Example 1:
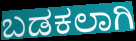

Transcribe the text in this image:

ಬಡಕಲಾಗಿ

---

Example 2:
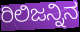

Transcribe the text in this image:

ರಿಲಿಜನ್ನಿನ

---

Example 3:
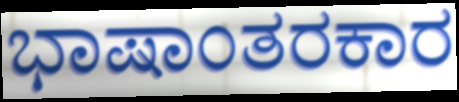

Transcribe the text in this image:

ಭಾಷಾಂತರಕಾರ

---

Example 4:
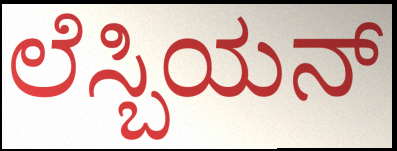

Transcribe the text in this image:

ಲೆಸ್ಬಿಯನ್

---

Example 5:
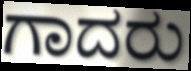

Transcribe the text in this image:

ಗಾದರು